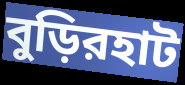
বুড়িরহাট